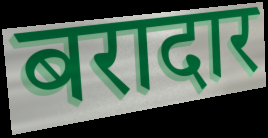
बरादार